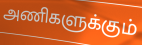
அணிகளுக்கும்